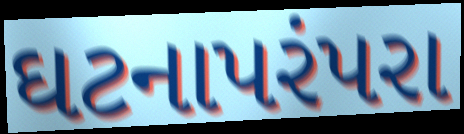
ઘટનાપરંપરા